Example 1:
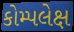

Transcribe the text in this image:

કોમ્પલેક્ષ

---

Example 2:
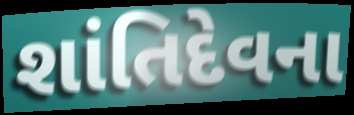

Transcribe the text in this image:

શાંતિદેવના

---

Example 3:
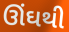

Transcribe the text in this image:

ઊંઘથી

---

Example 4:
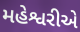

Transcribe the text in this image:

મહેશ્વરીએ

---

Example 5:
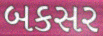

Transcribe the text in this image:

બકસર